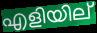
എളിയില്